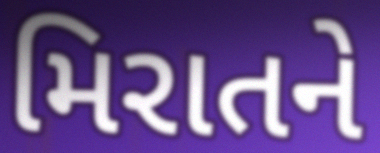
મિરાતને